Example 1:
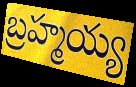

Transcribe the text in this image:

బ్రహ్మయ్య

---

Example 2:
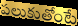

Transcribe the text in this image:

పలుకుతోంటే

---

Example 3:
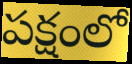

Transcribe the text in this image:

పక్షంలో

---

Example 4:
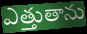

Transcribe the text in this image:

ఎత్తుతాను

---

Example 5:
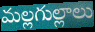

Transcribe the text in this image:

మల్లగుల్లాలు